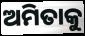
ଅମିତାକୁ